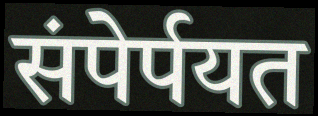
संपेर्पयत